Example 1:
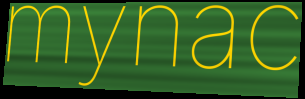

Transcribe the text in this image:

mynac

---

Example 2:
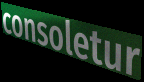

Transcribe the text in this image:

consoletur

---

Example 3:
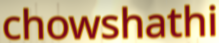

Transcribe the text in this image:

chowshathi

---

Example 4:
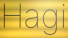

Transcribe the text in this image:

Hagi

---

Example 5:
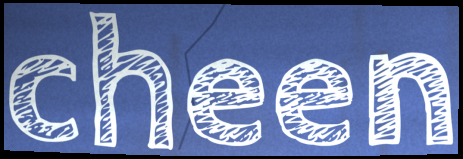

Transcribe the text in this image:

cheen